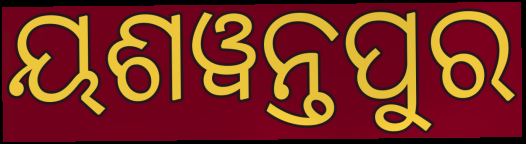
ୟଶୱନ୍ତପୁର